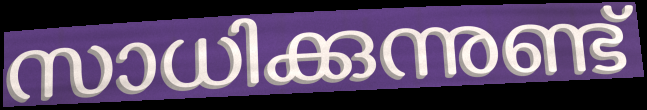
സാധിക്കുന്നുണ്ട്